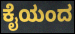
ಕೈಯಂದ